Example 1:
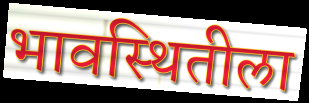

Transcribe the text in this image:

भावस्थितीला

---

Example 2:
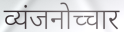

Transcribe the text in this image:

व्यंजनोच्चार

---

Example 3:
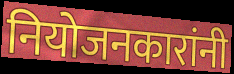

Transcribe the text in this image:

नियोजनकारांनी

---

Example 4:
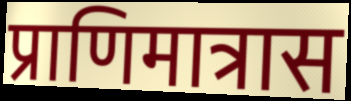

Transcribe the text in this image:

प्राणिमात्रास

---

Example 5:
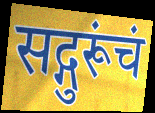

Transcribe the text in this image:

सद्गुरूंचं